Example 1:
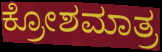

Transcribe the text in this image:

ಕ್ರೋಶಮಾತ್ರ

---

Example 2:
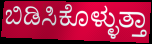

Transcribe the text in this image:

ಬಿಡಿಸಿಕೊಳ್ಳುತ್ತಾ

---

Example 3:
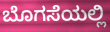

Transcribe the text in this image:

ಬೊಗಸೆಯಲ್ಲಿ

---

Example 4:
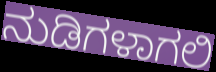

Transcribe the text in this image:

ನುಡಿಗಳಾಗಲಿ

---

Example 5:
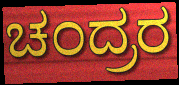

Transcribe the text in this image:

ಚಂದ್ರರ